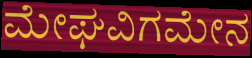
ಮೇಘವಿಗಮೇನ